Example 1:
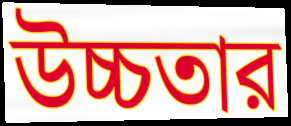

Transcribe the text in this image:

উচ্চতার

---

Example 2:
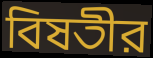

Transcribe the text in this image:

বিষতীর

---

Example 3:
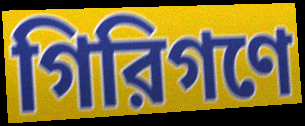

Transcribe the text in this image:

গিরিগণে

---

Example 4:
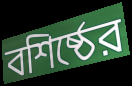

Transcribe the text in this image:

বশিষ্ঠের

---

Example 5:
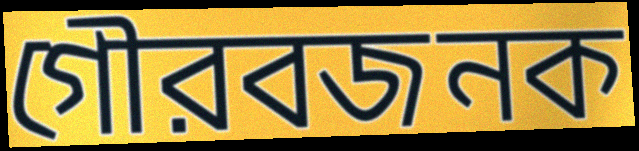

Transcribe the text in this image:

গৌরবজনক